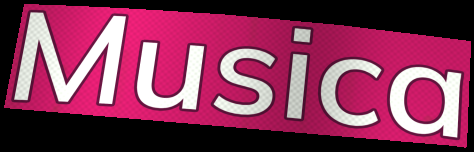
Musica